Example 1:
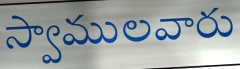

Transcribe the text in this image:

స్వాములవారు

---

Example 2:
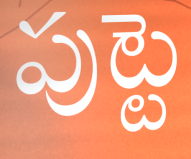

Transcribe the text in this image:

పుట్టె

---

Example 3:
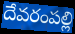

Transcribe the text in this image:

దేవరంపల్లి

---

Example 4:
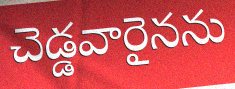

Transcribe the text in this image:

చెడ్డవారైనను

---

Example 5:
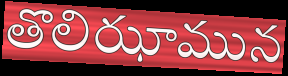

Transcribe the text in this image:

తొలిఝామున